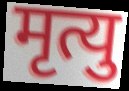
मृत्यु